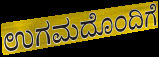
ಉಗಮದೊಂದಿಗೆ